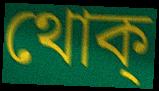
থোক্